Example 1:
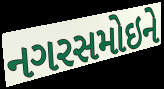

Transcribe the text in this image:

નગરસમોઇને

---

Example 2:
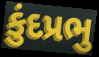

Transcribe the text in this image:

કુંદપ્રભુ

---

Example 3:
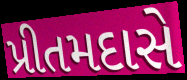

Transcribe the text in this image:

પ્રીતમદાસે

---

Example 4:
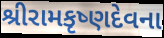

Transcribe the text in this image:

શ્રીરામકૃષ્ણદેવના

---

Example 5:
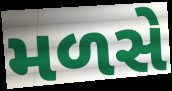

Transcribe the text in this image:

મળસે